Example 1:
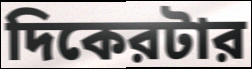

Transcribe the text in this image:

দিকেরটার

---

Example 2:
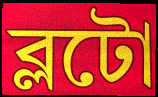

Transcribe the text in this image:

ব্লটো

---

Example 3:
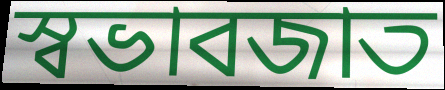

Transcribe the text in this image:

স্বভাবজাত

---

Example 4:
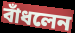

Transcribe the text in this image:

বাঁধলেন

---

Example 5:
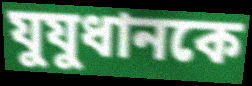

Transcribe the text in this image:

যুযুধানকে